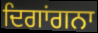
ਦਿਗਾਂਗਨਾ